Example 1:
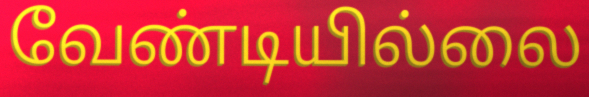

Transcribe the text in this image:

வேண்டியில்லை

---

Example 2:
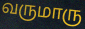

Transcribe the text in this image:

வருமாரு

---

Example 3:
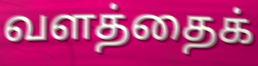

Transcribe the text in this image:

வளத்தைக்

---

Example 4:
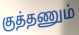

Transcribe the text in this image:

குத்தணும்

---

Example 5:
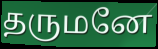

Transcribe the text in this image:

தருமனே